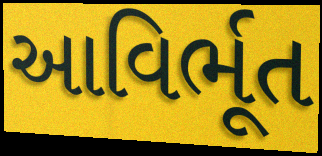
આવિર્ભૂત